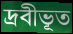
দ্রবীভূত